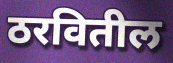
ठरवितील